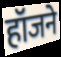
हॉजने